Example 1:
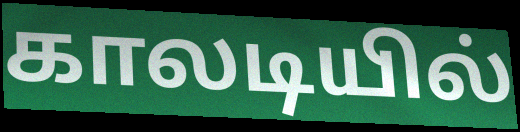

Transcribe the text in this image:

காலடியில்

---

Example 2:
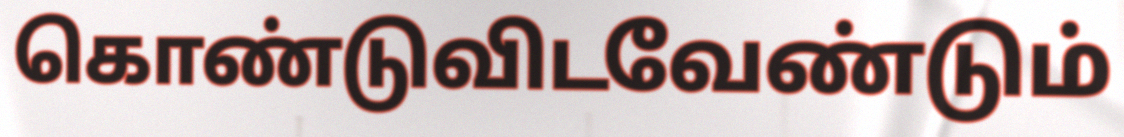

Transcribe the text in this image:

கொண்டுவிடவேண்டும்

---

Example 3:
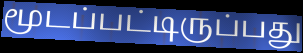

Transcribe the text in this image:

மூடப்பட்டிருப்பது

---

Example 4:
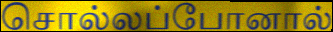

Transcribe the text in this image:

சொல்லப்போனால்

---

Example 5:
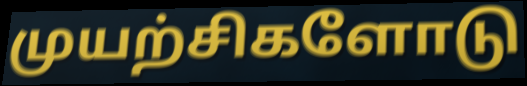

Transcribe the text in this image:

முயற்சிகளோடு